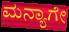
ಮನ್ಯಾಗೇ